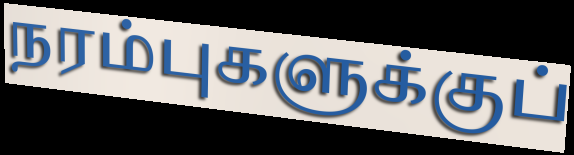
நரம்புகளுக்குப்